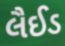
લૈઈડ